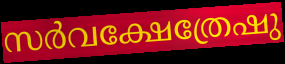
സർവക്ഷേത്രേഷു